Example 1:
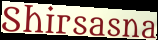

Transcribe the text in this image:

Shirsasna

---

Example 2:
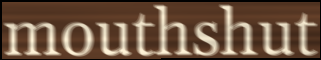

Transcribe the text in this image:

mouthshut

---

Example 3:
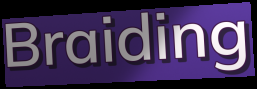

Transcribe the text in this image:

Braiding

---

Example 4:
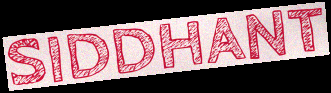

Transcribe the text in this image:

SIDDHANT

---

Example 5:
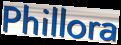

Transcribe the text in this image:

Phillora